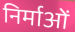
निर्माओं